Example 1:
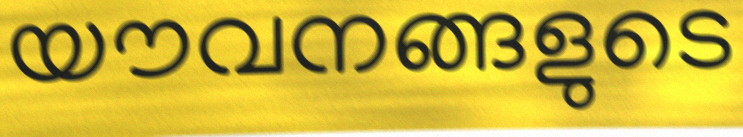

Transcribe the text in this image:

യൗവനങ്ങളുടെ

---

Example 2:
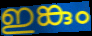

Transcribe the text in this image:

ഇങ്കും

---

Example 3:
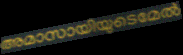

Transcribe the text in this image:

അമാസായിയുടെമേൽ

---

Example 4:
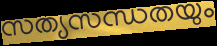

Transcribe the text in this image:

സത്യസന്ധതയും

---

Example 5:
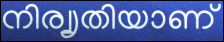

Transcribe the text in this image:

നിര്വൃതിയാണ്